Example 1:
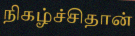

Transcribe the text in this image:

நிகழ்ச்சிதான்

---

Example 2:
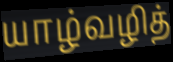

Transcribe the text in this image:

யாழ்வழித்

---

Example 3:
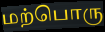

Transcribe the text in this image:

மற்பொரு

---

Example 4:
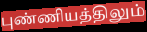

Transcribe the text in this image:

புண்ணியத்திலும்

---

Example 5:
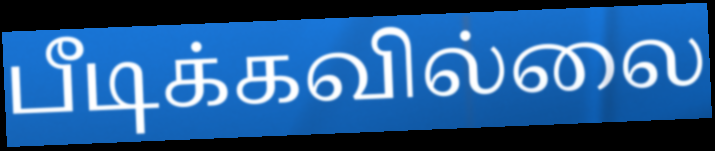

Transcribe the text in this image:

பீடிக்கவில்லை